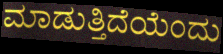
ಮಾಡುತ್ತಿದೆಯೆಂದು